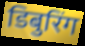
डिबुरिंग